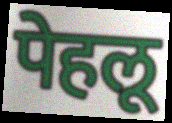
पेहलू